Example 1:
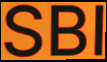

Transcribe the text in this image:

SBI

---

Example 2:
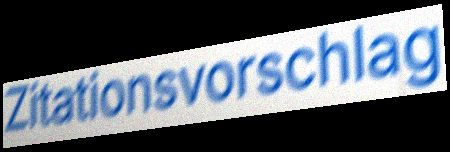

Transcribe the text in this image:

Zitationsvorschlag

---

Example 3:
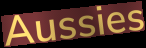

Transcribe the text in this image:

Aussies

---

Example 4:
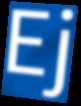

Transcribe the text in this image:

Ej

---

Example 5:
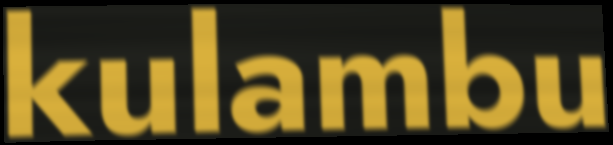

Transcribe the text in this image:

kulambu